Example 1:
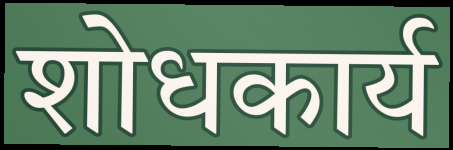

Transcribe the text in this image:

शोधकार्य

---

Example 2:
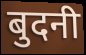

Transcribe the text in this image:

बुदनी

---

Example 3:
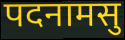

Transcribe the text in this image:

पदनामसु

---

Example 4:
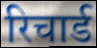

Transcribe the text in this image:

रिचार्ड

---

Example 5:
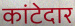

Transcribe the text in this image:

कांटेदार